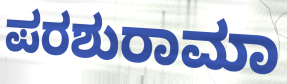
ಪರಶುರಾಮಾ